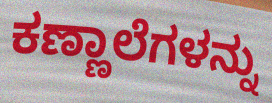
ಕಣ್ಣಾಲೆಗಳನ್ನು